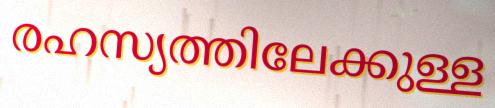
രഹസ്യത്തിലേക്കുള്ള